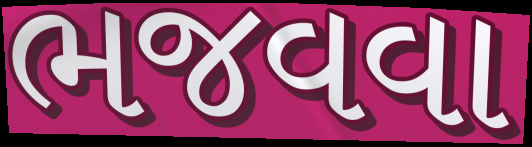
ભજવવા